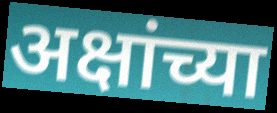
अक्षांच्या